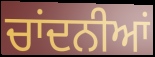
ਚਾਂਦਨੀਆਂ